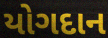
યોગદાન